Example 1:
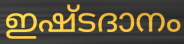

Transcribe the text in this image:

ഇഷ്ടദാനം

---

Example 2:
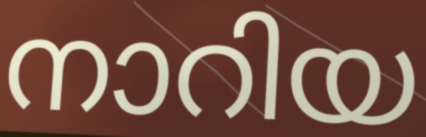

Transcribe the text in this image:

നാറിയ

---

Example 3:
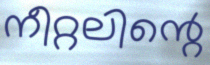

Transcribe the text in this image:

നീറ്റലിന്റെ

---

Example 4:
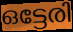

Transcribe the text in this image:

ഒട്ടേരി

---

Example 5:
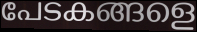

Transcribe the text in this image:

പേടകങ്ങളെ